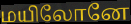
மயிலோனே